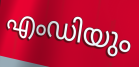
എംഡിയും